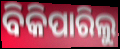
ବିକିପାରିଲୁ